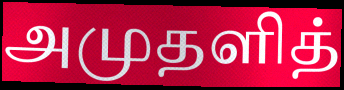
அமுதளித்